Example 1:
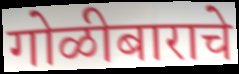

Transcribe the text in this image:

गोळीबाराचे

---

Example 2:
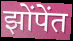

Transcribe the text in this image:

झोंपेंत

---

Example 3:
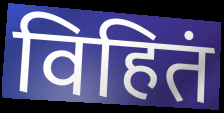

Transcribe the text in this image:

विहितं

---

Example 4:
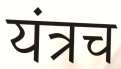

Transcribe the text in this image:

यंत्रच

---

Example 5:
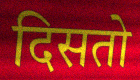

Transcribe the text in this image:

दिसतो